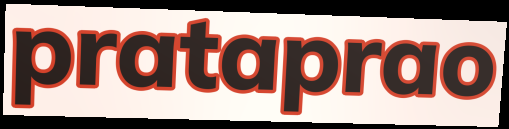
prataprao